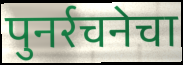
पुनर्रचनेचा